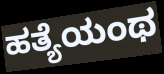
ಹತ್ಯೆಯಂಥ